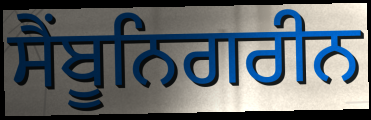
ਸੈਂਬੂਨਿਗਰੀਨ